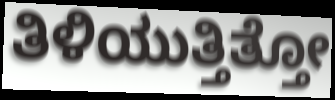
ತಿಳಿಯುತ್ತಿತ್ತೋ